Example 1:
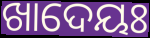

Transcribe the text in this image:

ଖାଦେୟଃ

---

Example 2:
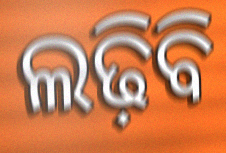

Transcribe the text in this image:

ଲଢ଼ିବି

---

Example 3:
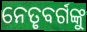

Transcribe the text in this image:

ନେତୃବର୍ଗଙ୍କୁ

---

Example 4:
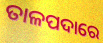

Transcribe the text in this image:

ତାଳପଦାରେ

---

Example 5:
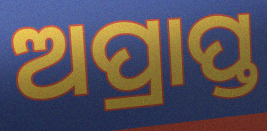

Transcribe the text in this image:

ଅପ୍ରାପ୍ତ